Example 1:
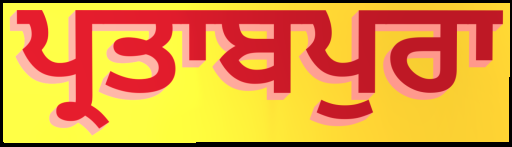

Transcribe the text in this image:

ਪ੍ਰਤਾਬਪੁਰਾ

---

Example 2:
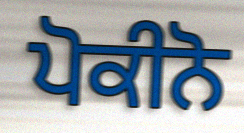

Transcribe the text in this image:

ਪੋਕੀਨੋ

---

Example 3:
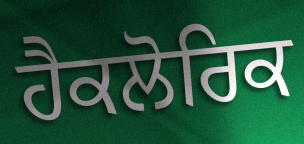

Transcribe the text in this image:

ਹੈਕਲੋਰਿਕ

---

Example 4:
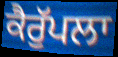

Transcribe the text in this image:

ਕੈਰੁੱਪਲਾ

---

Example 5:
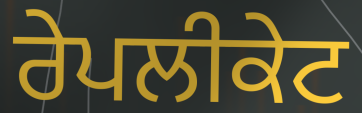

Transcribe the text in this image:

ਰੇਪਲੀਕੇਟ